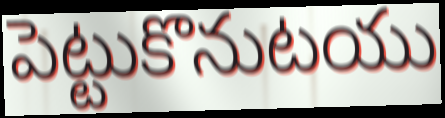
పెట్టుకొనుటయు